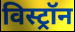
विस्ट्रॉन